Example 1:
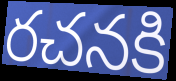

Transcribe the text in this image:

రచనకి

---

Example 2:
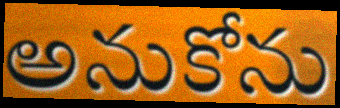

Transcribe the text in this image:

అనుకోను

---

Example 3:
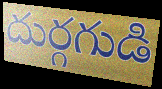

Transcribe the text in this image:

దుర్గగుడి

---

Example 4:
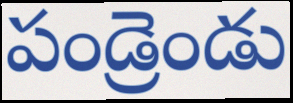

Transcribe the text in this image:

పండ్రెండు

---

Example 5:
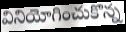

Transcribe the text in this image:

వినియోగించుకొన్న